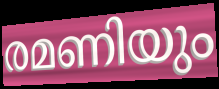
രമണിയും